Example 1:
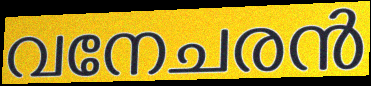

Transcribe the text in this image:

വനേചരൻ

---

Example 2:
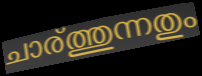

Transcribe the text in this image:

ചാര്ത്തുന്നതും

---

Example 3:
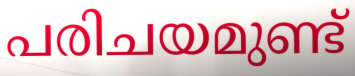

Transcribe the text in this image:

പരിചയമുണ്ട്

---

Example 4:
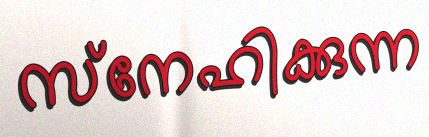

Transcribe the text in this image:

സ്‌നേഹിക്കുന്ന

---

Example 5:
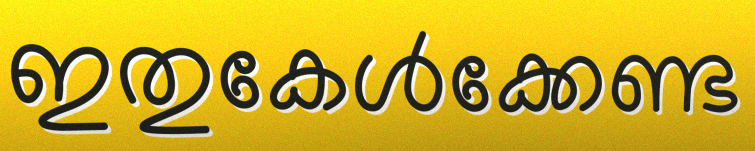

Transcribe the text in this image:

ഇതുകേൾക്കേണ്ട